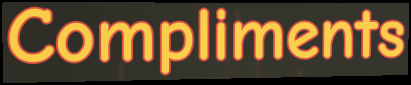
Compliments